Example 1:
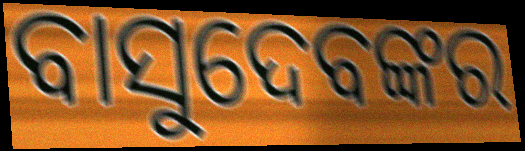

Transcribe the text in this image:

ବାସୁଦେବଙ୍କର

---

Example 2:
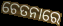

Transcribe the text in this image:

ଚେତନାରେ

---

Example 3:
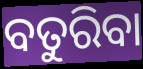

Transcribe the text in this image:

ବତୁରିବା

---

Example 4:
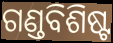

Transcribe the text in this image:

ଗଣ୍ଡବିଶିଷ୍ଟ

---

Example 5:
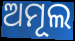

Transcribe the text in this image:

ଅମୂଲ